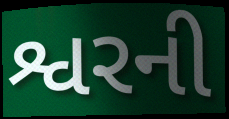
શ્વરની